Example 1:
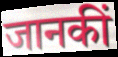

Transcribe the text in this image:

जानकीं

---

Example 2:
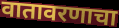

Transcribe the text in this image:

वातावरणाचा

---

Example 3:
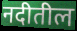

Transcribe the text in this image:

नदीतील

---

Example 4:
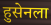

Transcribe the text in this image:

हुसेनला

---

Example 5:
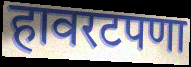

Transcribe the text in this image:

हावरटपणा